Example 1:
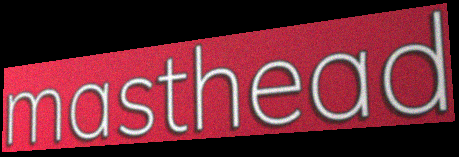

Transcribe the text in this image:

masthead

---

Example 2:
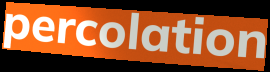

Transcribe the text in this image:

percolation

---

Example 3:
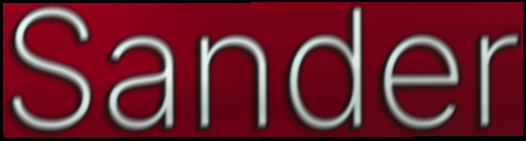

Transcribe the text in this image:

Sander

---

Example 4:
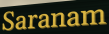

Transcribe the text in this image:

Saranam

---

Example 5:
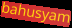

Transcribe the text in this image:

bahusyam